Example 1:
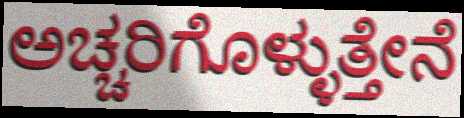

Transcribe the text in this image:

ಅಚ್ಚರಿಗೊಳ್ಳುತ್ತೇನೆ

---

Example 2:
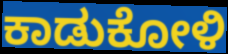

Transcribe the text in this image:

ಕಾಡುಕೋಳಿ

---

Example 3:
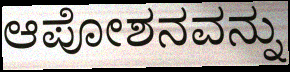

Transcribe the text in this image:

ಆಪೋಶನವನ್ನು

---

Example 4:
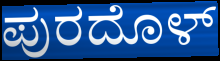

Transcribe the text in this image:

ಪುರದೊಳ್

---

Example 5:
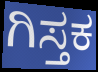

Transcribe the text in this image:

ಗಿಸ್ತಕ